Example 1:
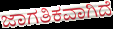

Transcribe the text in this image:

ಜಾಗತಿಕವಾಗಿದೆ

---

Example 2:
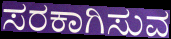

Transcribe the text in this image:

ಸರಕಾಗಿಸುವ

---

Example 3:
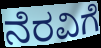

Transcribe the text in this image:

ನೆರವಿಗೆ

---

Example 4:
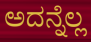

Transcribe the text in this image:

ಅದನ್ನೆಲ್ಲ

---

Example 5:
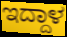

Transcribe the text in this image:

ಇದ್ದಾಳ